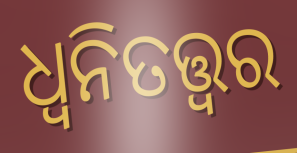
ଧ୍ଵନିତତ୍ତ୍ଵର